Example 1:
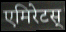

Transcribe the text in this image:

एमिरेटस्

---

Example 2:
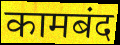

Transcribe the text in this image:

कामबंद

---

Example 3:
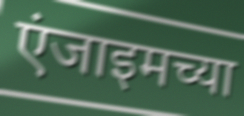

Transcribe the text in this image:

एंजाइमच्या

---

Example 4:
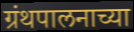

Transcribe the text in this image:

ग्रंथपालनाच्या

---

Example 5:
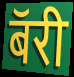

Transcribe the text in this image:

बॅरी